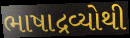
ભાષાદ્રવ્યોથી